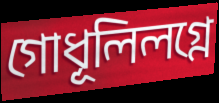
গোধূলিলগ্নে